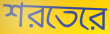
শরতেরে